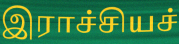
இராச்சியச்